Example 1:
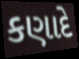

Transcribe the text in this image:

કણાદે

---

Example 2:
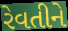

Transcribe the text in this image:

રેવતીને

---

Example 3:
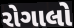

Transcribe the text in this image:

રોગાલો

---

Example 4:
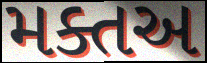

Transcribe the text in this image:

મક્તઅ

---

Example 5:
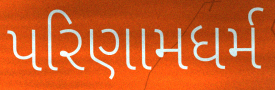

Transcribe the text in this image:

પરિણામધર્મ